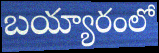
బయ్యారంలో